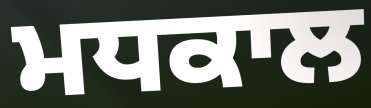
ਮਧਕਾਲ